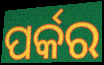
ପର୍କର